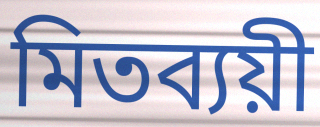
মিতব্যয়ী